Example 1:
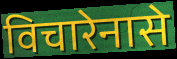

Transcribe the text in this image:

विचारेनासे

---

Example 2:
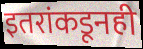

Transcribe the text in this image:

इतरांकडूनही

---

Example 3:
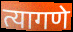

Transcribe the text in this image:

त्यागणे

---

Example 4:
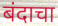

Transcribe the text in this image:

बंदाचा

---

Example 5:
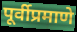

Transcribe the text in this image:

पूर्वीप्रमाणे